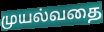
முயல்வதை